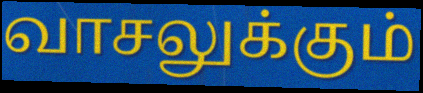
வாசலுக்கும்